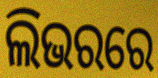
ଲିଭରରେ